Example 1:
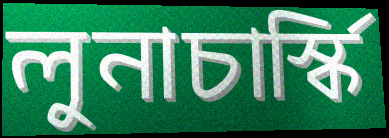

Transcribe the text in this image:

লুনাচার্স্কি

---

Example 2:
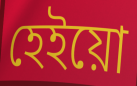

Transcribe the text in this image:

হেইয়ো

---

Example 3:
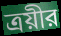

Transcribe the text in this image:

ত্রয়ীর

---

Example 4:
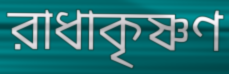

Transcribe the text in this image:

রাধাকৃষ্ণণ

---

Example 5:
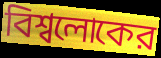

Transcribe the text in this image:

বিশ্বলোকের